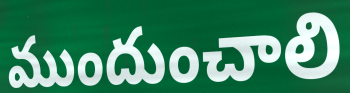
ముందుంచాలి